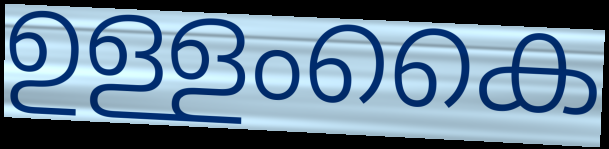
ഉള്ളംകൈ